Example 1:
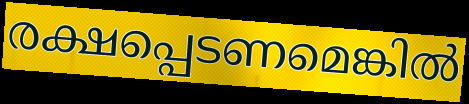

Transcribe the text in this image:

രക്ഷപ്പെടണമെങ്കിൽ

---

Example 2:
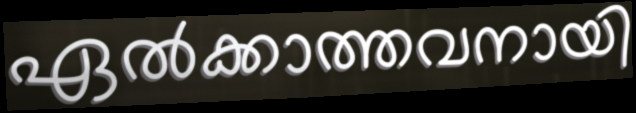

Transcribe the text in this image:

ഏൽക്കാത്തവനായി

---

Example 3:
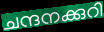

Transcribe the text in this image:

ചന്ദനക്കുറി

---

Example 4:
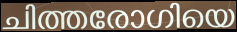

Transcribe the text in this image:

ചിത്തരോഗിയെ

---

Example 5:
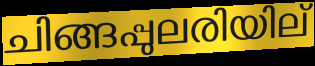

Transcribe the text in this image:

ചിങ്ങപ്പുലരിയില്